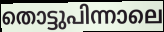
തൊട്ടുപിന്നാലെ